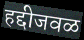
हद्दीजवळ